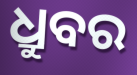
ଧ୍ରୁବର